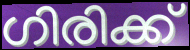
ഗിരിക്ക്